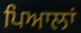
ਪਿਆਲਾਂ